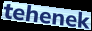
tehenek